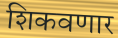
शिकवणार